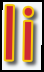
li